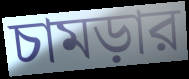
চামড়ার